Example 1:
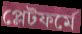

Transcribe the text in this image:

প্লেটফৰ্মে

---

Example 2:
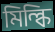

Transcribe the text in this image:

মিল্কি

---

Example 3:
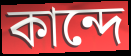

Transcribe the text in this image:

কান্দে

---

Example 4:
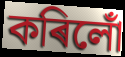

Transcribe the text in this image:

কৰিলোঁ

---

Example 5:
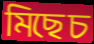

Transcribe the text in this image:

মিছেচ